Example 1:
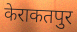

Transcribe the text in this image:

केराकतपुर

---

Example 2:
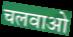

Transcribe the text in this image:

चलवाओ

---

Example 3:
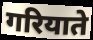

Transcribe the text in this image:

गरियाते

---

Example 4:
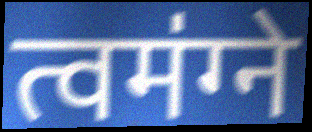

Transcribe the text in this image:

त्वम॑ग्ने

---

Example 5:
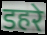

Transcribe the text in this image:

डहरे